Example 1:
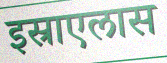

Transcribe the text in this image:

इस्राएलास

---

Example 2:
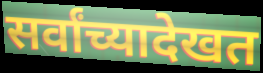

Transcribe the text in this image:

सर्वांच्यादेखत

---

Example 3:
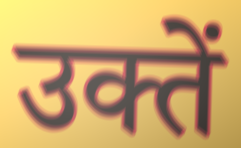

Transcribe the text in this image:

उक्तें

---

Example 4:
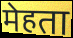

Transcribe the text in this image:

मेहता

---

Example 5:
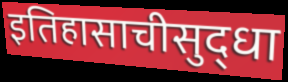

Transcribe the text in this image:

इतिहासाचीसुद्धा